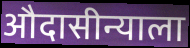
औदासीन्याला